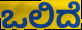
ಒಲಿದೆ